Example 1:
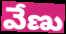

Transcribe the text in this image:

వేణు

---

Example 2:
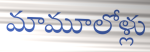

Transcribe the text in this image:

మామూలోళ్లు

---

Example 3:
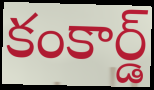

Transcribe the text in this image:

కంకార్డ్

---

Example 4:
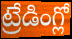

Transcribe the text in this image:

ట్రేడింగ్లో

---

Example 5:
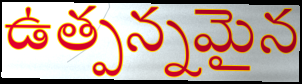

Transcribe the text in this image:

ఉత్పన్నమైన